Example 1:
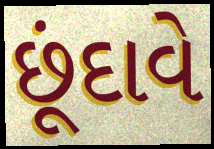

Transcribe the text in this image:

છૂંદાવે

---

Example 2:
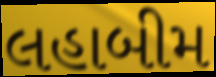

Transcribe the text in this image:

લહાબીમ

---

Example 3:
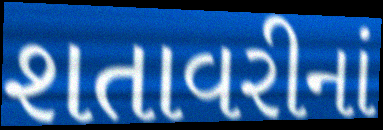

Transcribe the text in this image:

શતાવરીનાં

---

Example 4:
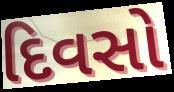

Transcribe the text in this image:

દિવસો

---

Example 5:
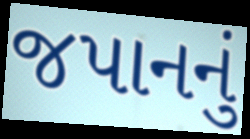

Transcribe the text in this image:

જપાનનું